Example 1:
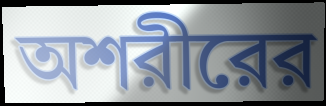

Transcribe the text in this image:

অশরীরের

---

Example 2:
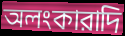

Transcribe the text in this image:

অলংকারাদি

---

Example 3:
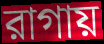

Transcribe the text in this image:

রাগায়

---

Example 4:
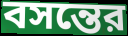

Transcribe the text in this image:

বসন্তের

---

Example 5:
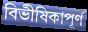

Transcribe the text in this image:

বিভীষিকাপূর্ণ